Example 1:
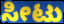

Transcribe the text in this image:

ಸೀಟು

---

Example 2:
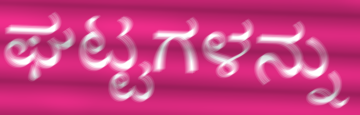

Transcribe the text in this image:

ಘಟ್ಟಗಳನ್ನು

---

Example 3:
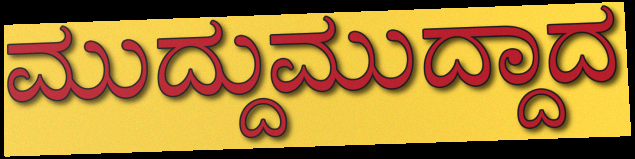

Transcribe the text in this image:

ಮುದ್ದುಮುದ್ದಾದ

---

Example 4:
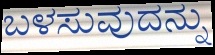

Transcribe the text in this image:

ಬಳಸುವುದನ್ನು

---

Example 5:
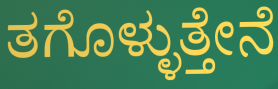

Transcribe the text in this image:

ತಗೊಳ್ಳುತ್ತೇನೆ